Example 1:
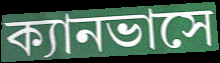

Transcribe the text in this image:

ক্যানভাসে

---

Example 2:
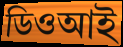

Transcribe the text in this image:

ডিওআই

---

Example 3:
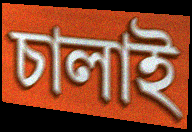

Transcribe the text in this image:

চালাই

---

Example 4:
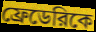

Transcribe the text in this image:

ফ্রেডেরিকে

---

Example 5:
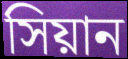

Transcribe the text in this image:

সিয়ান